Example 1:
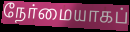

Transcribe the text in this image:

நேர்மையாகப்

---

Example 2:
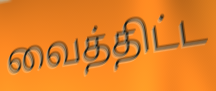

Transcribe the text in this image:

வைத்திட்ட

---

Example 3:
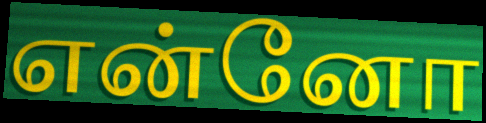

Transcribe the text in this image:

என்னோ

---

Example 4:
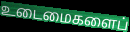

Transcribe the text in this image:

உடைமைகளைப்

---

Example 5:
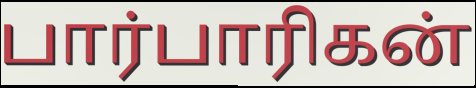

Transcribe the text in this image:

பார்பாரிகன்